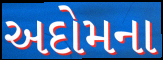
અદોમના